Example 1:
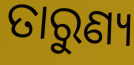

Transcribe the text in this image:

ତାରୁଣ୍ୟ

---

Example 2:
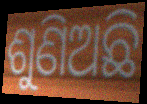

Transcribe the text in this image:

ଶୁଣିଅଛି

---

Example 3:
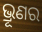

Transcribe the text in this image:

ଭ୍ରୂଣର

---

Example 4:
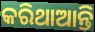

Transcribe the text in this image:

କରିଥାଆନ୍ତି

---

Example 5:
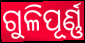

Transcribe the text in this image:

ଗୁଳିପୂର୍ଣ୍ଣ